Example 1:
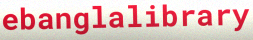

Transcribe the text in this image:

ebanglalibrary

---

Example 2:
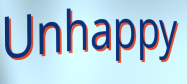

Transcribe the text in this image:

Unhappy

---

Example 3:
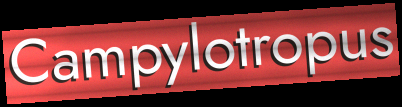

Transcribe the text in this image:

Campylotropus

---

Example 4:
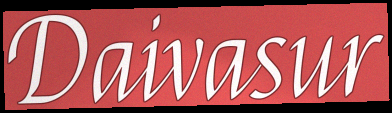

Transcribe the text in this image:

Daivasur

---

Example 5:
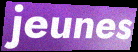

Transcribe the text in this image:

jeunes